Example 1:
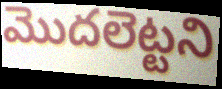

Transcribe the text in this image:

మొదలెట్టని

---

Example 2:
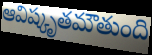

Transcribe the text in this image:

ఆవిష్కృతమౌతుంది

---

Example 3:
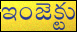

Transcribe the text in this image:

ఇంజెక్టు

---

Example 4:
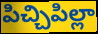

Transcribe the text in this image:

పిచ్చిపిల్లా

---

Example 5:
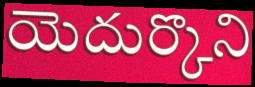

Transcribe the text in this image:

యెదుర్కొని